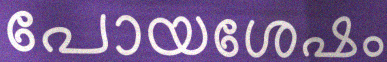
പോയശേഷം